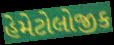
હેમેટોલોજીક